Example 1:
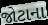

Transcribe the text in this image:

જોટાના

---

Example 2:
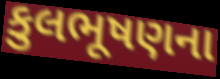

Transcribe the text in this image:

કુલભૂષણના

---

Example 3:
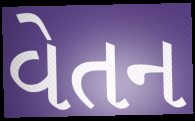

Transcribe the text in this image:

વેતન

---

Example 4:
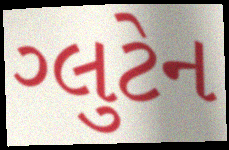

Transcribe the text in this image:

ગ્લુટેન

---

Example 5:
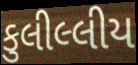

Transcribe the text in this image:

કુલીલ્લીય